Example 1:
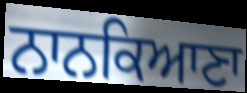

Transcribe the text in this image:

ਨਾਨਕਿਆਣਾ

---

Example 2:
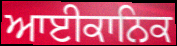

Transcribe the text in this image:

ਆਈਕਾਨਿਕ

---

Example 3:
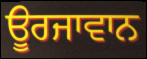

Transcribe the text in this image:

ਊਰਜਾਵਾਨ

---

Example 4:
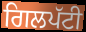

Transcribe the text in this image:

ਗਿਲਪੱਟੀ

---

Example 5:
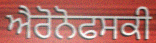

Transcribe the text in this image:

ਐਰੋਨੋਫਸਕੀ